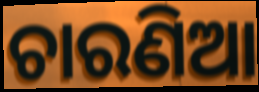
ଚାରଣିଆ